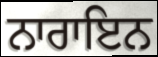
ਨਾਰਾਇਨ